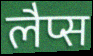
लैप्स